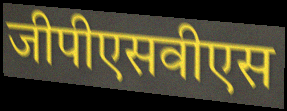
जीपीएसवीएस